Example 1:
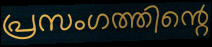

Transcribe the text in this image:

പ്രസംഗത്തിന്റെ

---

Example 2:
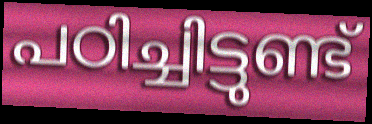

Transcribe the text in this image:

പഠിച്ചിട്ടുണ്ട്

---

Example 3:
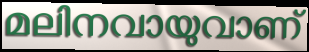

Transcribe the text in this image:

മലിനവായുവാണ്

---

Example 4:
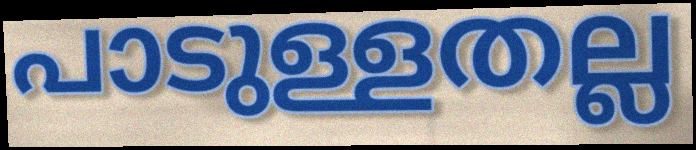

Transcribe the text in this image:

പാടുള്ളതല്ല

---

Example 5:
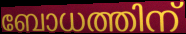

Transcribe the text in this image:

ബോധത്തിന്